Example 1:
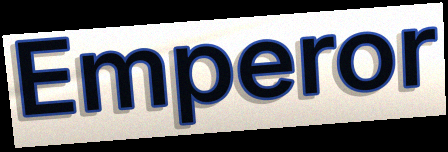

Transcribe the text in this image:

Emperor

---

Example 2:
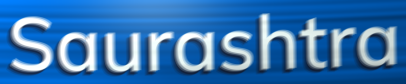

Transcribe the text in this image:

Saurashtra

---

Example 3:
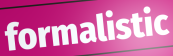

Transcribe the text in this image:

formalistic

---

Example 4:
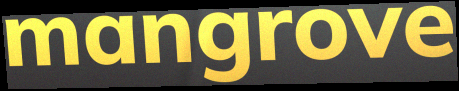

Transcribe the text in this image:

mangrove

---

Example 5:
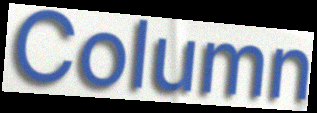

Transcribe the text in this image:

Column